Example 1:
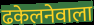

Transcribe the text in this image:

ढकेलनेवाला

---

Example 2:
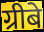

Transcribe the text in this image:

ग्रीबे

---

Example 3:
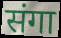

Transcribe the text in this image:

संगा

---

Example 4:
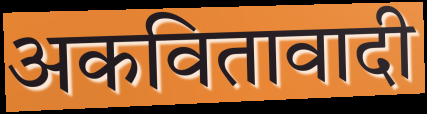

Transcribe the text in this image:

अकवितावादी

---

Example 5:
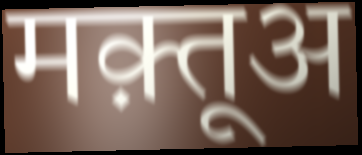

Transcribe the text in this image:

मक़्तूअ